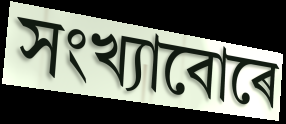
সংখ্যাবোৰে